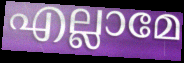
എല്ലാമേ